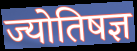
ज्योतिषज्ञ